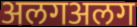
अलगअलग